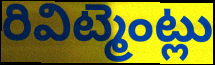
రివిట్మెంట్లు